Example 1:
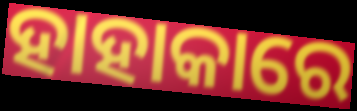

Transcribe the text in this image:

ହାହାକାରେ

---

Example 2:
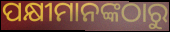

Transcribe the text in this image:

ପକ୍ଷୀମାନଙ୍କଠାରୁ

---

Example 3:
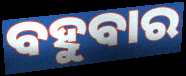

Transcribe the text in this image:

ବହୁବାର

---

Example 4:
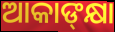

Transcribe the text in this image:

ଆକାଙ୍‌କ୍ଷା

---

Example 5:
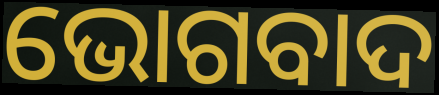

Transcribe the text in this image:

ଭୋଗବାଦ